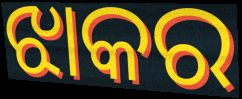
ଝାକର